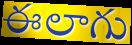
ఈలాగు